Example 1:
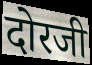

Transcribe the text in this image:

दोरजी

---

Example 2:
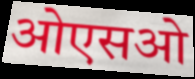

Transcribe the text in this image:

ओएसओ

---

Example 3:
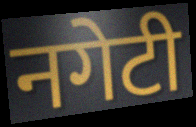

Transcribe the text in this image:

नगेटी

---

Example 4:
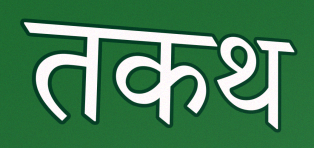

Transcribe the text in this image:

तकथ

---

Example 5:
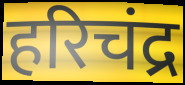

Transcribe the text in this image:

हरिचंद्र